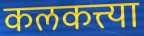
कलकत्त्या